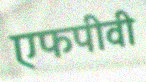
एफपीवी